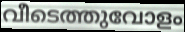
വീടെത്തുവോളം